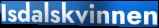
Isdalskvinnen